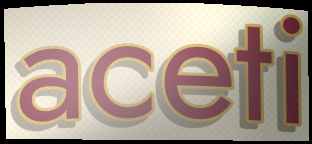
aceti